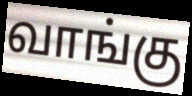
வாங்கு